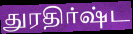
துரதிர்ஷ்ட